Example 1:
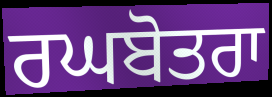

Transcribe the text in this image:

ਰਘਬੋਤਰਾ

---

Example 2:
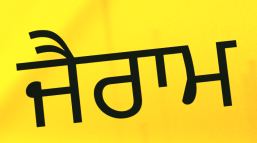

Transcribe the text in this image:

ਜੈਰਾਮ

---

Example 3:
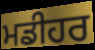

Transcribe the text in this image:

ਮਡੀਹਰ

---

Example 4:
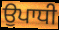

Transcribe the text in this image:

ਉਪਾਧੀ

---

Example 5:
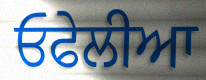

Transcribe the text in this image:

ਓਫੇਲੀਆ